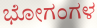
ಭೋಗಂಗಳ